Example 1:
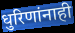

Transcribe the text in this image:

धुरिणांनाही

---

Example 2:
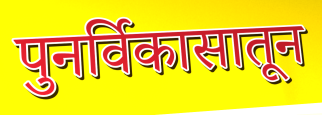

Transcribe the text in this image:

पुनर्विकासातून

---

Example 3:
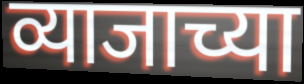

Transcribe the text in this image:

व्याजाच्या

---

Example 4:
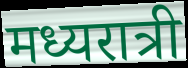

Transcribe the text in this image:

मध्यरात्री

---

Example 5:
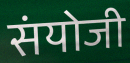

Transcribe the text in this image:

संयोजी